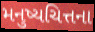
મનુષ્યચિત્તના